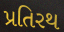
પ્રતિરથ